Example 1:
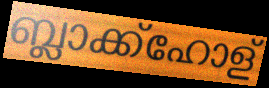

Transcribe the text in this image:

ബ്ലാക്ക്ഹോള്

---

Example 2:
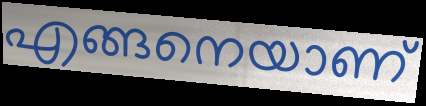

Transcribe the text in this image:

എങ്ങനെയാണ്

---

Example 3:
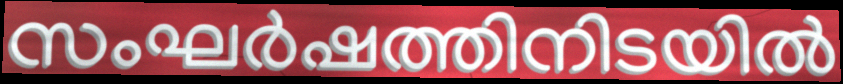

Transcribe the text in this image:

സംഘർഷത്തിനിടയിൽ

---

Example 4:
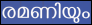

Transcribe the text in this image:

രമണിയും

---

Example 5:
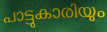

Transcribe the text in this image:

പാട്ടുകാരിയും